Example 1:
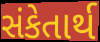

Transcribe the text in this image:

સંકેતાર્થ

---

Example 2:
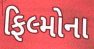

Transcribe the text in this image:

ફિલ્મોના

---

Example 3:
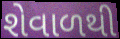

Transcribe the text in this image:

શેવાળથી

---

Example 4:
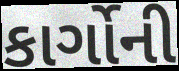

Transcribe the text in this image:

કાર્ગોની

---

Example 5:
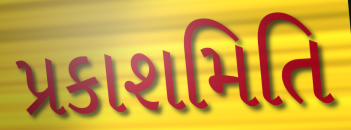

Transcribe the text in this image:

પ્રકાશમિતિ